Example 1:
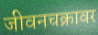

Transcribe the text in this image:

जीवनचक्रावर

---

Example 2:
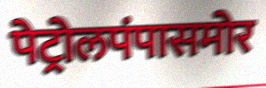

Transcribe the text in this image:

पेट्रोलपंपासमोर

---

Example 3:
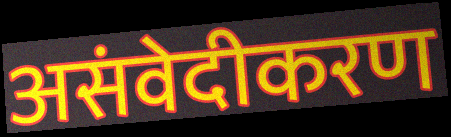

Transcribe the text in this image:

असंवेदीकरण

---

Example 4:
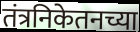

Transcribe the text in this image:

तंत्रनिकेतनच्या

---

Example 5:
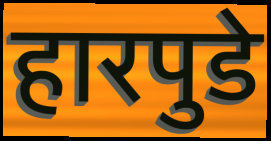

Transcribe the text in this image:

हारपुडे